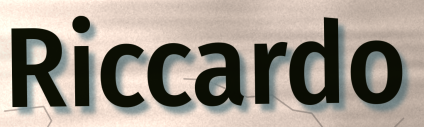
Riccardo